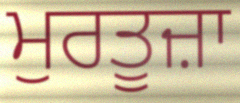
ਮੁਰਤੂਜ਼ਾ